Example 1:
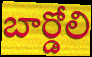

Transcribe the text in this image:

బార్డోలి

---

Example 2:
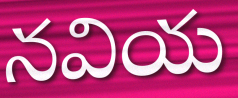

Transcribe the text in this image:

నవియ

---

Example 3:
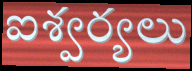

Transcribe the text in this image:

ఐశ్వర్యలు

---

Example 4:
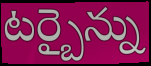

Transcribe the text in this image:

టర్బైన్ను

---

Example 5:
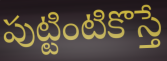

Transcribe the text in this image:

పుట్టింటికొస్తే